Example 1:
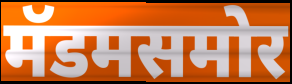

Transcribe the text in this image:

मॅडमसमोर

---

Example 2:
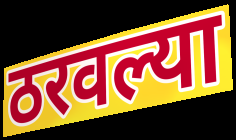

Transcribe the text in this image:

ठरवल्या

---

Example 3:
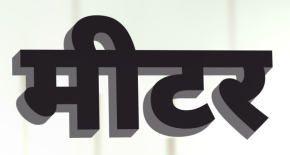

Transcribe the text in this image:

मीटर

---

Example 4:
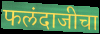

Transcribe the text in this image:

फलंदाजीचा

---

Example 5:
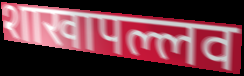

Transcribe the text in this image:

शाखापल्लव